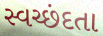
સ્વચ્છંદતા